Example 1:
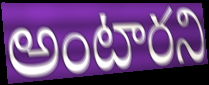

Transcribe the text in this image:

అంటారని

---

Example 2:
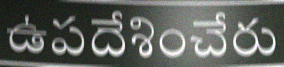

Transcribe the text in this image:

ఉపదేశించేరు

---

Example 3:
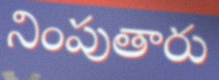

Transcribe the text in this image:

నింపుతారు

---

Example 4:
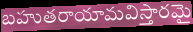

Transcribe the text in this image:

బహుతరాయామవిస్తారమై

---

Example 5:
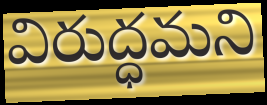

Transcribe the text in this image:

విరుద్ధమని